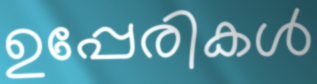
ഉപ്പേരികൾ